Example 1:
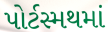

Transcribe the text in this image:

પોર્ટસ્મથમાં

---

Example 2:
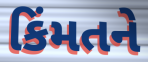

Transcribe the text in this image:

કિંમતને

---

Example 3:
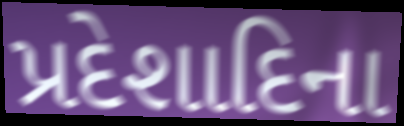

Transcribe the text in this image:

પ્રદેશાદિના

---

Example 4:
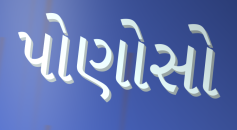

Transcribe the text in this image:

પોણોસો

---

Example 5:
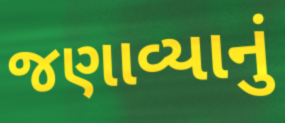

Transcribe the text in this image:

જણાવ્યાનું